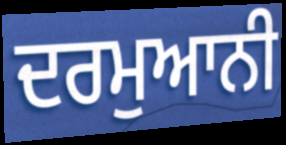
ਦਰਮੁਆਨੀ